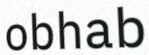
obhab